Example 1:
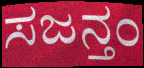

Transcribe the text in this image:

ಸಜನ್ತಂ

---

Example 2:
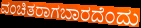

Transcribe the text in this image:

ವಂಚಿತರಾಗಬಾರದೆಂದು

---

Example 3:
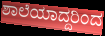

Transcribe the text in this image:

ಶಾಲೆಯಾದ್ದರಿಂದ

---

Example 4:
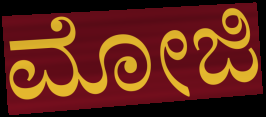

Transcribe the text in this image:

ಮೋಜಿ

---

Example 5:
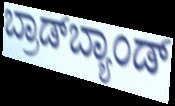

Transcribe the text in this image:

ಬ್ರಾಡ್‌ಬ್ಯಾಂಡ್